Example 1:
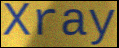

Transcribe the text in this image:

Xray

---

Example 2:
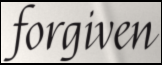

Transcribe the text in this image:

forgiven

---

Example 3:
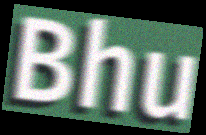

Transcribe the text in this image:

Bhu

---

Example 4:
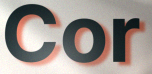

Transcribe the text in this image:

Cor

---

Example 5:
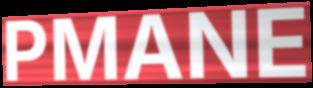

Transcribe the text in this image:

PMANE